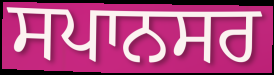
ਸਪਾਨਸਰ